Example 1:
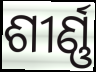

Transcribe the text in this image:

ଶୀର୍ଣ୍ଣ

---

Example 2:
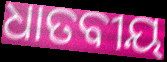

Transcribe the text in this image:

ଧାତବୀୟ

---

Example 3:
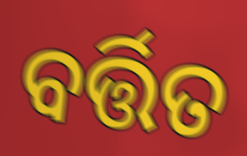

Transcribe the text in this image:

ବର୍ତ୍ତିତ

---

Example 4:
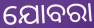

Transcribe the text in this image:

ଯୋବରା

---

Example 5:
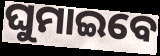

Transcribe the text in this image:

ଘୁମାଇବେ